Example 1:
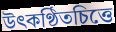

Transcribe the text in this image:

উৎকণ্ঠিতচিত্তে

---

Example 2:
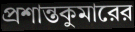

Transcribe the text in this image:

প্রশান্তকুমারের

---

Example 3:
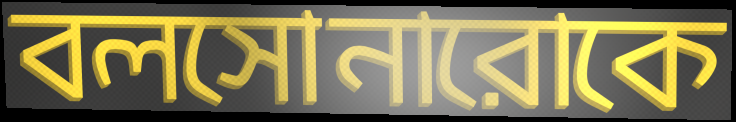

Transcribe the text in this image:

বলসোনারোকে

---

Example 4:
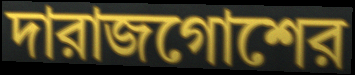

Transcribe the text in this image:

দারাজগোশের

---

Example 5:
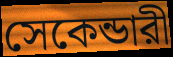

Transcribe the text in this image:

সেকেন্ডারী